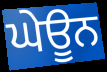
ਘੇਊਨ